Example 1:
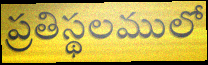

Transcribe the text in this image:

ప్రతిస్థలములో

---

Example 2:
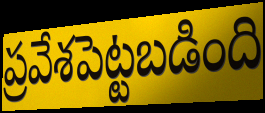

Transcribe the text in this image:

ప్రవేశపెట్టబడింది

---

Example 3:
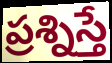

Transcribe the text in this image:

ప్రశ్నిస్తే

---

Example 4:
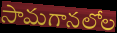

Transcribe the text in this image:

సామగానలోల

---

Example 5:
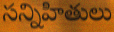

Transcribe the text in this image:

సన్నిహితులు